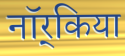
नॉर्किया